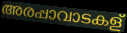
അരപ്പാവാടകള്